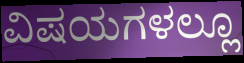
ವಿಷಯಗಳಲ್ಲೂ